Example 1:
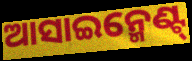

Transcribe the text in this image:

ଆସାଇନ୍ମେଣ୍ଟ୍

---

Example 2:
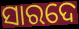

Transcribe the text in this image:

ସାରଦେ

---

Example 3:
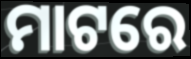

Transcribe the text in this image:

ମାଟରେ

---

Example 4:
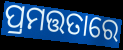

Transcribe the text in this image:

ପ୍ରମତ୍ତତାରେ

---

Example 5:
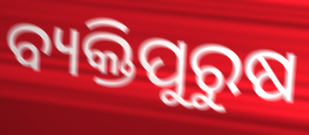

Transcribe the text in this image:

ବ୍ୟକ୍ତିପୁରୁଷ